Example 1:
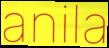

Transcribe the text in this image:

anila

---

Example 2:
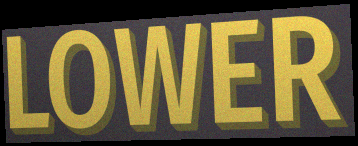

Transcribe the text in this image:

LOWER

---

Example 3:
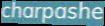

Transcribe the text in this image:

charpashe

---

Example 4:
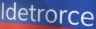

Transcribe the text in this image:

Idetrorce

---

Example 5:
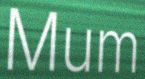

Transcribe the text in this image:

Mum